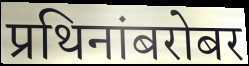
प्रथिनांबरोबर